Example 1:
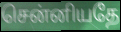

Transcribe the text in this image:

சென்னியதே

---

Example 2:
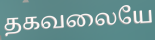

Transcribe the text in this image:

தகவலையே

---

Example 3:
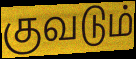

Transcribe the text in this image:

குவடும்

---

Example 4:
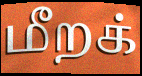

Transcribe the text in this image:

மீறக்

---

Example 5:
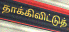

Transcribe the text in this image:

தாக்கிவிட்டுத்